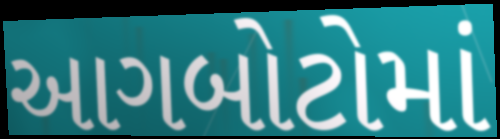
આગબોટોમાં